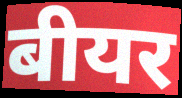
बीयर